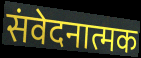
संवेदनात्मक